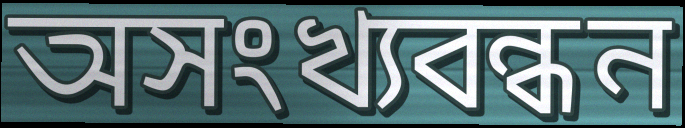
অসংখ্যবন্ধন